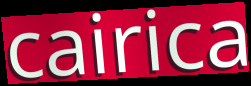
cairica